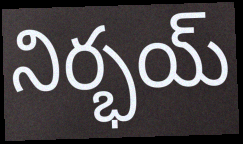
నిర్భయ్